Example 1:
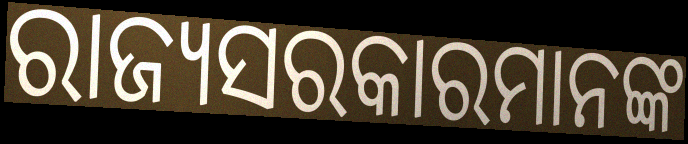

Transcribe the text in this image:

ରାଜ୍ୟସରକାରମାନଙ୍କ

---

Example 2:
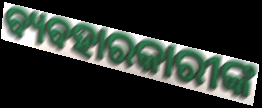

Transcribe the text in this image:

ବ୍ୟବହାରକାରୀଙ୍କ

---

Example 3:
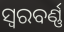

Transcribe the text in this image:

ସ୍ୱରବର୍ଣ୍ଣ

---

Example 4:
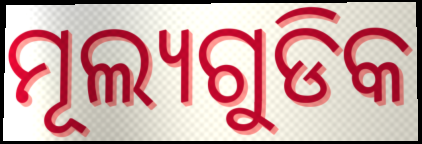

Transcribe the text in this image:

ମୂଲ୍ୟଗୁଡିକ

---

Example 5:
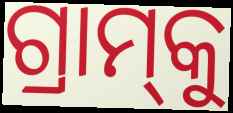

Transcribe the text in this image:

ଗ୍ରାମ୍‌କୁ